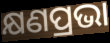
କ୍ଷଣପ୍ରଭା